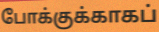
போக்குக்காகப்